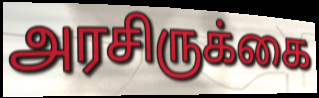
அரசிருக்கை